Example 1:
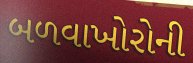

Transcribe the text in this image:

બળવાખોરોની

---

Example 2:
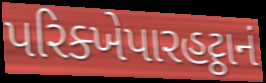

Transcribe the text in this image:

પરિક્ખેપારહટ્ઠાનં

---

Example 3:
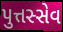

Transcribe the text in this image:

પુત્તસ્સેવ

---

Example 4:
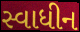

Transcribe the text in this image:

સ્વાધીન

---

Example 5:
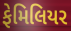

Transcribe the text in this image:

ફેમિલિયર